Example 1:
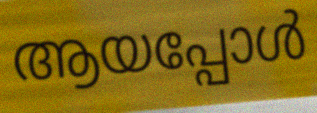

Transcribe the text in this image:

ആയപ്പോൾ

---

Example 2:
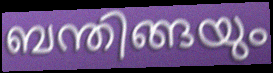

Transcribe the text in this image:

ബന്തിങ്ങയും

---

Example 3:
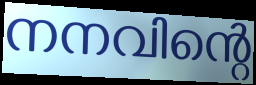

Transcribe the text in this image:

നനവിന്റെ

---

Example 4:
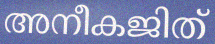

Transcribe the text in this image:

അനീകജിത്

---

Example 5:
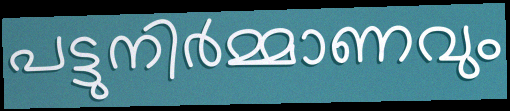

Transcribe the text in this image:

പട്ടുനിർമ്മാണവും